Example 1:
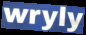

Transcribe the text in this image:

wryly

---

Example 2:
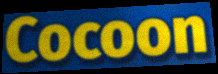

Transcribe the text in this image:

Cocoon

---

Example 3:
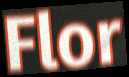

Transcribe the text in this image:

Flor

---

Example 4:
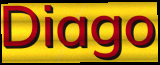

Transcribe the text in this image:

Diago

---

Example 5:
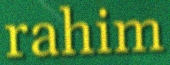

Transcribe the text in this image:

rahim